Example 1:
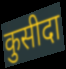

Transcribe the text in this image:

कुसीदा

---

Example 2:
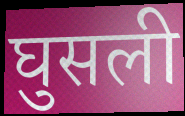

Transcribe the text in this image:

घुसली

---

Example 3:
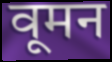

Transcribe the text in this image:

वूमन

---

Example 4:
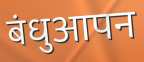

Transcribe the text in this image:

बंधुआपन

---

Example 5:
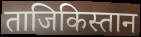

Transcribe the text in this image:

ताजिकिस्तान